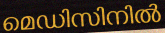
മെഡിസിനിൽ